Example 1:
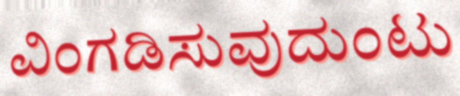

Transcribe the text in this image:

ವಿಂಗಡಿಸುವುದುಂಟು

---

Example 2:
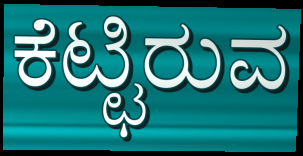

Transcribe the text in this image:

ಕೆಟ್ಟಿರುವ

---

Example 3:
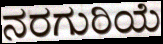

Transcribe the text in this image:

ನರಗುರಿಯೆ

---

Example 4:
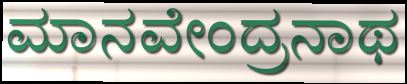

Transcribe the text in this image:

ಮಾನವೇಂದ್ರನಾಥ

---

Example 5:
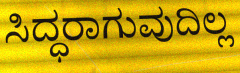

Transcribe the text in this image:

ಸಿದ್ಧರಾಗುವುದಿಲ್ಲ